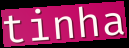
tinha